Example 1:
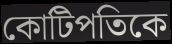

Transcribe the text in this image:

কোটিপতিকে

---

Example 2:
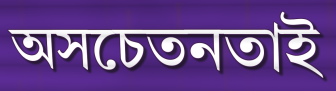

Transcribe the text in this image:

অসচেতনতাই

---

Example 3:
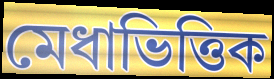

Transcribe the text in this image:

মেধাভিত্তিক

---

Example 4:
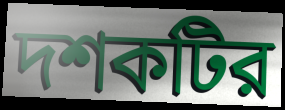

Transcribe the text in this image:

দশকটির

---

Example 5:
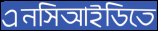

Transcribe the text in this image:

এনসিআইডিতে